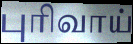
புரிவாய்